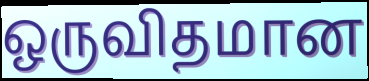
ஒருவிதமான